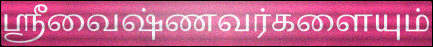
ஸ்ரீவைஷ்ணவர்களையும்